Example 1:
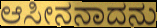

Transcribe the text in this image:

ಆಸೀನನಾದನು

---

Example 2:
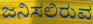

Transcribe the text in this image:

ಜನಿಸಲಿರುವ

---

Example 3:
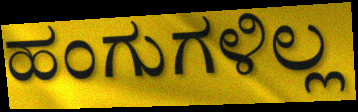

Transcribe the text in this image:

ಹಂಗುಗಳಿಲ್ಲ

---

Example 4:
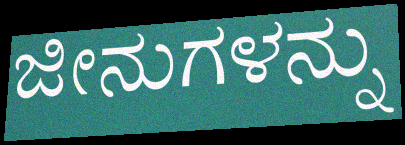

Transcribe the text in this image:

ಜೀನುಗಳನ್ನು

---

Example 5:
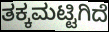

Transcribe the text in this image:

ತಕ್ಕಮಟ್ಟಿಗಿದೆ